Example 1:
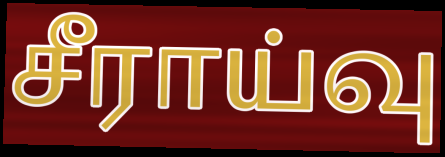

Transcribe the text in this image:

சீராய்வு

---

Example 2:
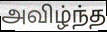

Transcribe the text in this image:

அவிழ்ந்த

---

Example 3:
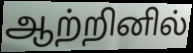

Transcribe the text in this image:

ஆற்றினில்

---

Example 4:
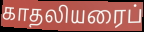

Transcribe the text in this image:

காதலியரைப்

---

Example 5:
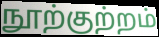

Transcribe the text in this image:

நூற்குற்றம்